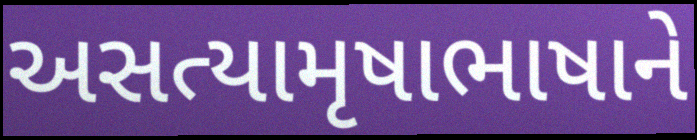
અસત્યામૃષાભાષાને